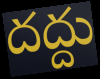
దద్దు